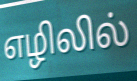
எழிலில்